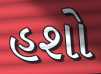
હશો